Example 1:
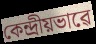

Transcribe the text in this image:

কেন্দ্ৰীয়ভাৱে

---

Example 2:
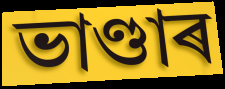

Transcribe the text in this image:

ভাণ্ডাৰ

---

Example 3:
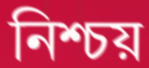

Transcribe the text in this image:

নিশ্চয়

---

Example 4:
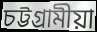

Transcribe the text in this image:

চট্টগ্ৰামীয়া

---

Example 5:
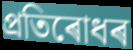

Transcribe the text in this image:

প্ৰতিৰোধৰ